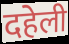
दहेली